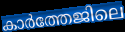
കാർത്തേജിലെ